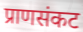
प्राणसंकट